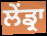
ਲੇਂਡ੍ਰਾ